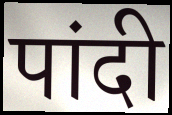
पांदी